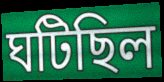
ঘটিছিল